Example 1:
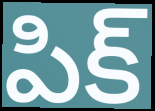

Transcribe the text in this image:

పిక్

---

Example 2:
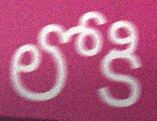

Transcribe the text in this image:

లోకి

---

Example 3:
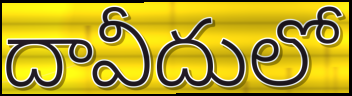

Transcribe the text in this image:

దావీదులో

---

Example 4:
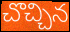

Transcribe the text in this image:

చొచ్చిన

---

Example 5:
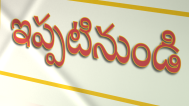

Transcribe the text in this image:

ఇప్పటినుండి